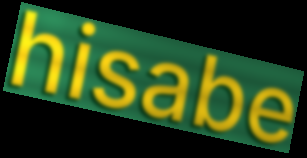
hisabe